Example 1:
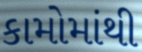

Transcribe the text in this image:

કામોમાંથી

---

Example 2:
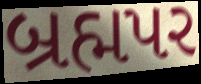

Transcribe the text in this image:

બ્રહ્મપર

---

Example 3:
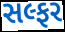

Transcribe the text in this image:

સલ્ફર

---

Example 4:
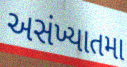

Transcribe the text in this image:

અસંખ્યાતમા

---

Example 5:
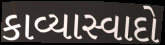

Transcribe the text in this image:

કાવ્યાસ્વાદો